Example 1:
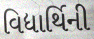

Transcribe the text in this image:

વિદ્યાર્થિની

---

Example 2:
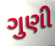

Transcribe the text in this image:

ગુણી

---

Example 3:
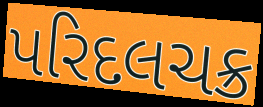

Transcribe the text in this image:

પરિદલચક્ર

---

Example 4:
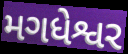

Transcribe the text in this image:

મગધેશ્વર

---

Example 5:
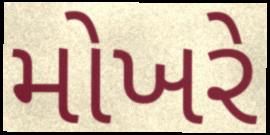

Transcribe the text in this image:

મોખરે